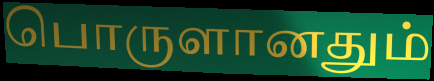
பொருளானதும்